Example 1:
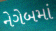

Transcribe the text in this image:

નેગેબમાં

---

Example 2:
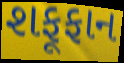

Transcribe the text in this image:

શફૂફાન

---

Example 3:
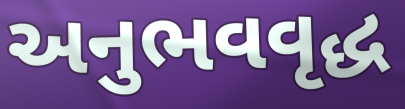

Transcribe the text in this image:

અનુભવવૃદ્ધ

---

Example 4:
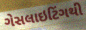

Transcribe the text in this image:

ગેસલાઇટિંગથી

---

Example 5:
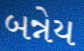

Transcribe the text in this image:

બન્નેય